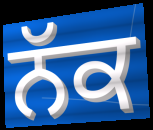
ਨੱਕ